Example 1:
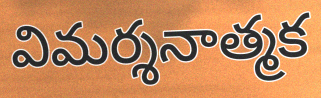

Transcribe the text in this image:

విమర్శనాత్మక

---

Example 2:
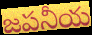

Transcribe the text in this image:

జపనీయ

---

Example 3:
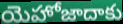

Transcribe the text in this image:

యెహోజాదాకు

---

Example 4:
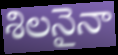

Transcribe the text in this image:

శిలనైనా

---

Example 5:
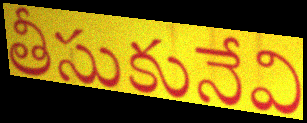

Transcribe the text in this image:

తీసుకునేవి